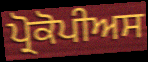
ਪ੍ਰੋਕੋਪੀਅਸ